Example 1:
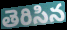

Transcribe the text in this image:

తెరిసిన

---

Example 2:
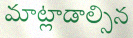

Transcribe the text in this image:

మాట్లాడాల్సిన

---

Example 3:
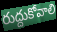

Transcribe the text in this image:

రుద్దుకోవాలి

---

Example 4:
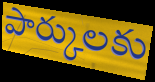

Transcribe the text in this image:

పార్కులకు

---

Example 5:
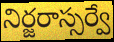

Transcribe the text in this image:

నిర్జరాస్సర్వే